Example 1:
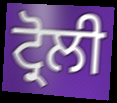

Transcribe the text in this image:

ਟ੍ਰੋਲੀ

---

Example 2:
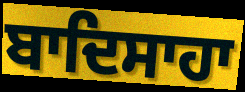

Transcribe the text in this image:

ਬਾਦਿਸਾਹਾ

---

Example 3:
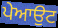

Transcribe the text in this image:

ਪੇਆਉਟ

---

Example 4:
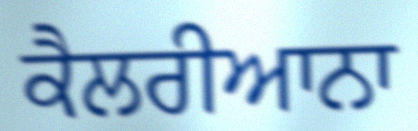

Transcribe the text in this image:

ਕੈਲਰੀਆਨਾ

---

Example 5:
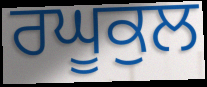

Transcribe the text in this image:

ਰਘੂਕੁਲ